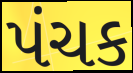
પંચક